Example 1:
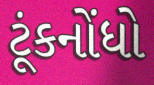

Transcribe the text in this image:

ટૂંકનોંધો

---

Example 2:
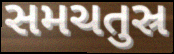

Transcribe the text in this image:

સમચતુસ્ર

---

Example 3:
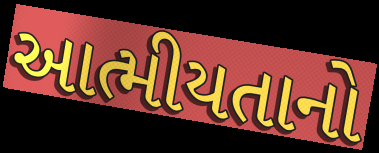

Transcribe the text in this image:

આત્મીયતાનો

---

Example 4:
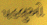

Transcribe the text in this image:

પહલુઓ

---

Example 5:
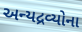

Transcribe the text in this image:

અન્યદ્રવ્યોના